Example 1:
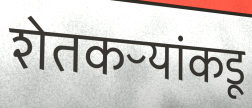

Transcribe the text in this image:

शेतकऱ्यांकडू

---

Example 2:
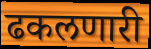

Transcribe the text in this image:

ढकलणारी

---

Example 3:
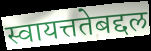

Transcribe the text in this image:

स्वायत्ततेबद्दल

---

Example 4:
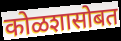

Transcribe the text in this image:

कोळशासोबत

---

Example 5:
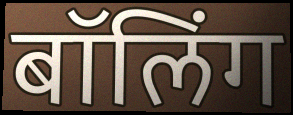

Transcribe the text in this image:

बॉलिंग